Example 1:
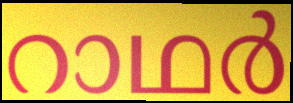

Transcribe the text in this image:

റാഥർ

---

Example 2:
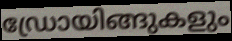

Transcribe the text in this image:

ഡ്രോയിങ്ങുകളും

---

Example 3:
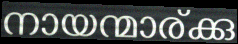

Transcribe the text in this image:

നായന്മാര്ക്കു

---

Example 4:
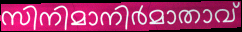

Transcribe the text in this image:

സിനിമാനിർമാതാവ്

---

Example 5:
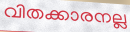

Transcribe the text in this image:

വിതക്കാരനല്ല